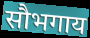
सौभगाय